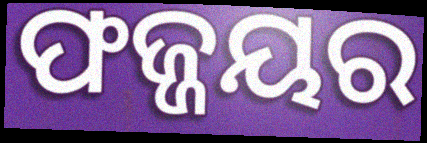
ଫଜ୍ଜୟର